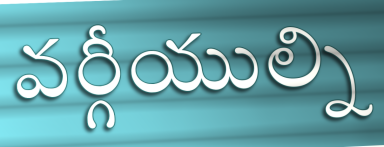
వర్గీయుల్ని